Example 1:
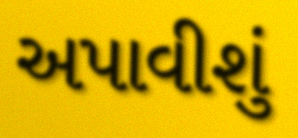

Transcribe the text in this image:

અપાવીશું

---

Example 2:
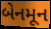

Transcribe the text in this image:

બેનમૂન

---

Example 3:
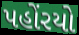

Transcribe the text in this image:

પહોંરયો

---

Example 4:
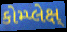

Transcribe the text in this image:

કોમ્પ્લેક્ષ્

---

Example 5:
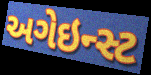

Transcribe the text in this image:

અગેઇન્સ્ટ